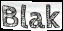
Blak